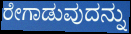
ರೇಗಾಡುವುದನ್ನು